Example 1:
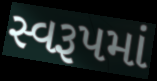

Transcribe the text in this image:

સ્વરૂપમાં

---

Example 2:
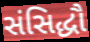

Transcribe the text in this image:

સંસિદ્ધૌ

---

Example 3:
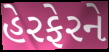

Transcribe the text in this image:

હેરફેરને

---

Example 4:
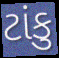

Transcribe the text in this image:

ટાંકુ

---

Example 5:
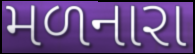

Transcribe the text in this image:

મળનારા